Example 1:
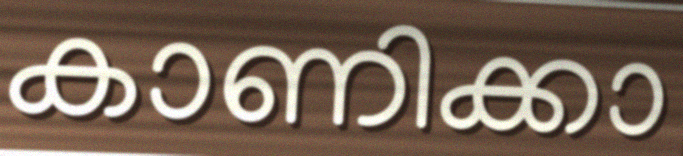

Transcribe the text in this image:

കാണിക്കാ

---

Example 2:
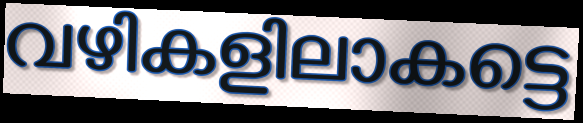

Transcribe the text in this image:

വഴികളിലാകട്ടെ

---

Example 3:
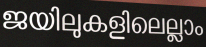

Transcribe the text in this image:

ജയിലുകളിലെല്ലാം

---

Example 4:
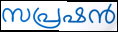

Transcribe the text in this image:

സപ്രഷൻ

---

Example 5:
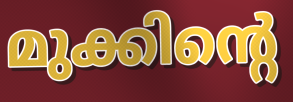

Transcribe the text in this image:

മുക്കിന്റെ